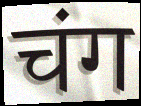
चंग